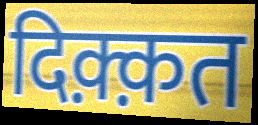
दिक़्क़त